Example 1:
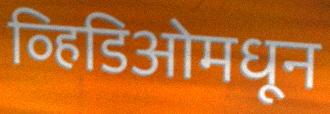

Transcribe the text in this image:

व्हिडिओमधून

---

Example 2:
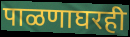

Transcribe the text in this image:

पाळणाघरही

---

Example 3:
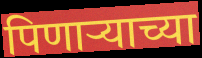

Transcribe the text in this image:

पिणाऱ्याच्या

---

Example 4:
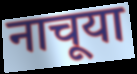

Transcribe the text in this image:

नाचूया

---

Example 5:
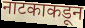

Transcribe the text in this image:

नाटकाकडून